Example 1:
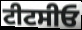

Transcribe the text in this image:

ਟੀਟਸੀਓ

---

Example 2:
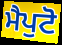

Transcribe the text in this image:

ਮੈਪੁਟੋ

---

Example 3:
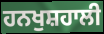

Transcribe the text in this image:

ਹਨਖੁਸ਼ਹਾਲੀ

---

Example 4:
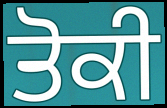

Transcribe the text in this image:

ਤੋਕੀ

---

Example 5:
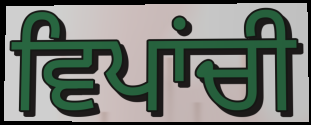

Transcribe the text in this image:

ਵਿਪਾਂਚੀ